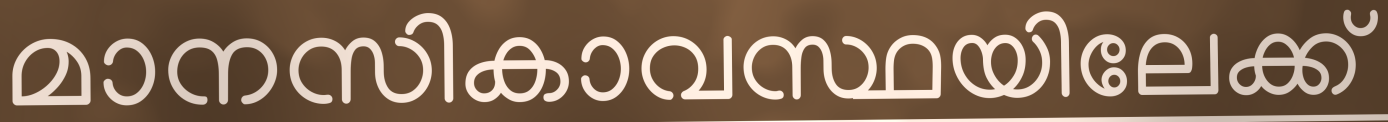
മാനസികാവസ്ഥയിലേക്ക്